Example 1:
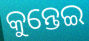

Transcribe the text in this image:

କୁନ୍ତେଇ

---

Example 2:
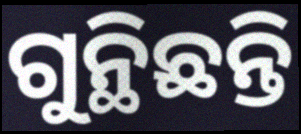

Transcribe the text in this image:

ଗୁନ୍ଥିଛନ୍ତି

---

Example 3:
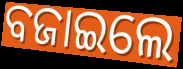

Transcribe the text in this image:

ବଜାଇଲେ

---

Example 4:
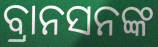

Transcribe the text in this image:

ବ୍ରାନସନଙ୍କ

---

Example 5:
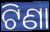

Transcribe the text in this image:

ଟିଣା